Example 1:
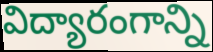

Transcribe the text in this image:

విద్యారంగాన్ని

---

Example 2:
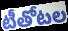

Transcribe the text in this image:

టీతోటల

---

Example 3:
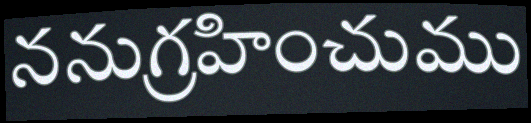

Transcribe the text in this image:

ననుగ్రహించుము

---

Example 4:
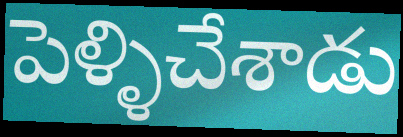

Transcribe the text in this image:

పెళ్ళిచేశాడు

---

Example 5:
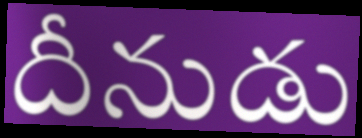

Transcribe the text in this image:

దీనుడు